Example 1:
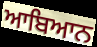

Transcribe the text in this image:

ਆਬਿਆਨ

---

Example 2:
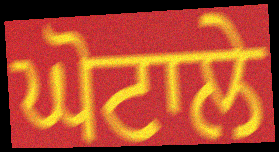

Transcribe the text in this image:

ਘੋਟਾਲੇ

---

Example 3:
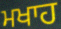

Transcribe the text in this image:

ਮਖਾਹ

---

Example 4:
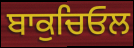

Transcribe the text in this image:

ਬਾਕੁਚਿਓਲ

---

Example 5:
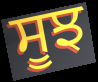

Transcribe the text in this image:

ਸੂਝ